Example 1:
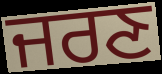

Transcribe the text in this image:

ਜਰਣ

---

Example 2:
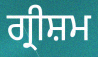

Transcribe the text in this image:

ਗ੍ਰੀਸ਼ਮ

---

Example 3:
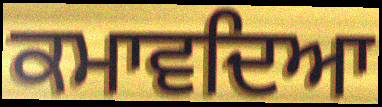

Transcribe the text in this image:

ਕਮਾਵਦਿਆ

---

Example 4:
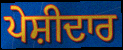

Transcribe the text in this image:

ਪੇਸ਼ੀਦਾਰ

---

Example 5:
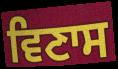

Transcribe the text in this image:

ਵਿਣਾਸ